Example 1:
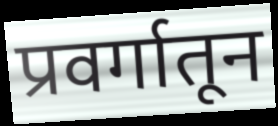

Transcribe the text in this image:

प्रवर्गातून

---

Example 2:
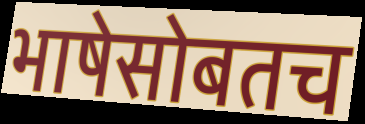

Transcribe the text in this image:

भाषेसोबतच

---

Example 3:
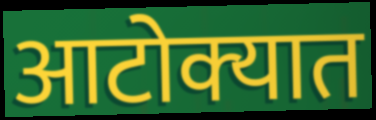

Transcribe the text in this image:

आटोक्‍यात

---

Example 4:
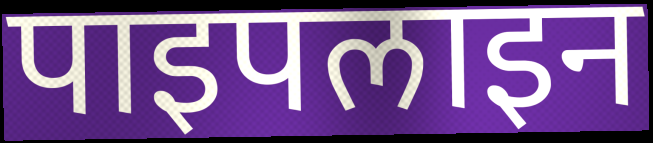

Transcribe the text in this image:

पाइपलाइन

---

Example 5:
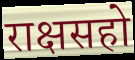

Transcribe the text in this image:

राक्षसहो